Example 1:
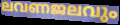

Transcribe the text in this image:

ലവണജലവും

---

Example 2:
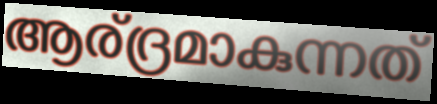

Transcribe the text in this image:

ആര്ദ്രമാകുന്നത്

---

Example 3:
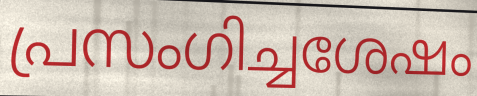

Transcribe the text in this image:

പ്രസംഗിച്ചശേഷം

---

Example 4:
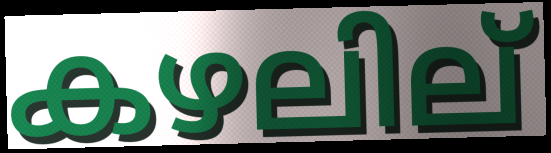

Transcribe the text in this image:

കഴലില്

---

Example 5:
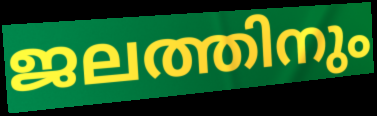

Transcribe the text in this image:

ജലത്തിനും